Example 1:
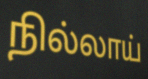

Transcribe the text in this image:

நில்லாய்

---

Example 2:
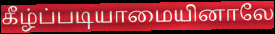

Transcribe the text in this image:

கீழ்ப்படியாமையினாலே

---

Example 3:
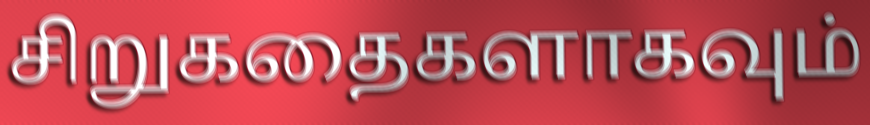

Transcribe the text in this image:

சிறுகதைகளாகவும்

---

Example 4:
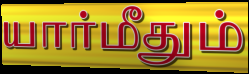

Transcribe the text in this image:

யார்மீதும்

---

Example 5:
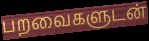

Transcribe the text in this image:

பறவைகளுடன்